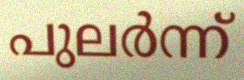
പുലർന്ന്